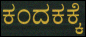
ಕಂದಕಕ್ಕೆ